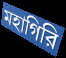
মহাগিরি